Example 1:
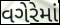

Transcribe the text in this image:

વગેરેમાં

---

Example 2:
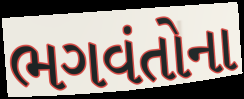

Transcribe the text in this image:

ભગવંતોના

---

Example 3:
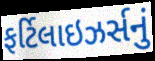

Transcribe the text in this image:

ફર્ટિલાઇઝર્સનું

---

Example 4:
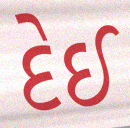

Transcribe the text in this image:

દેઈ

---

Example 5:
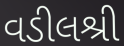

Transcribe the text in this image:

વડીલશ્રી